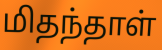
மிதந்தாள்